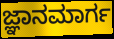
ಜ್ಞಾನಮಾರ್ಗ